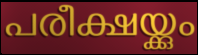
പരീക്ഷയ്ക്കും